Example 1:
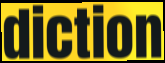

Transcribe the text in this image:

diction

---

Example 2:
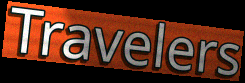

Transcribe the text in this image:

Travelers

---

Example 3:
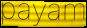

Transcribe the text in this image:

payam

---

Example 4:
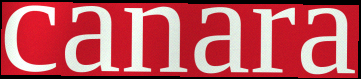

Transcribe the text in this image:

canara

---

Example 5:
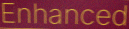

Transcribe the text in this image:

Enhanced